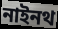
নাইনথ